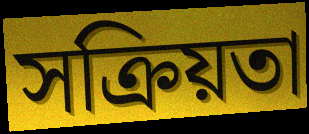
সক্ৰিয়তা